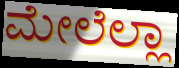
ಮೇಲೆಲ್ಲಾ